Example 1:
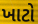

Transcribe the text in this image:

ખાટો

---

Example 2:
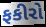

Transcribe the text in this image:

ફકીરો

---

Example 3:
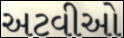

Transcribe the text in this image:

અટવીઓ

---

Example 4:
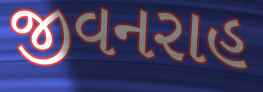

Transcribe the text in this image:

જીવનરાહ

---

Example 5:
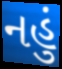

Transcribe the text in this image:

નહું